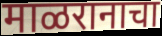
माळरानाचा